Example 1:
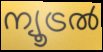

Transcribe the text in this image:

ന്യൂട്രൽ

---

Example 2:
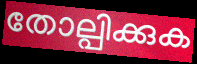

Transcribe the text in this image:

തോല്പിക്കുക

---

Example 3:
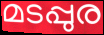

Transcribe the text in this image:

മടപ്പുര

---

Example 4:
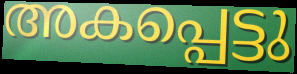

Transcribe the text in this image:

അകപ്പെട്ടു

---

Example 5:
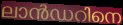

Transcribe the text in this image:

ലാൻഡറിനെ